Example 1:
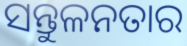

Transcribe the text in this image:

ସନ୍ତୁଳନତାର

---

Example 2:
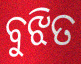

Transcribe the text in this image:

ବୁଝିତ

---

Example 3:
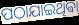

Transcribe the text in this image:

ପଠାଯାଇଥିଵା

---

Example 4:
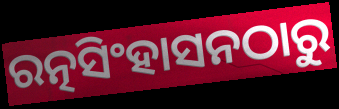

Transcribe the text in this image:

ରତ୍ନସିଂହାସନଠାରୁ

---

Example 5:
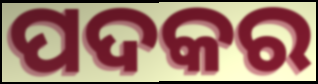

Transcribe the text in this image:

ପଦକର